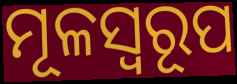
ମୂଳସ୍ୱରୂପ